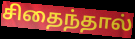
சிதைந்தால்